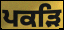
ਪਕੜਿ